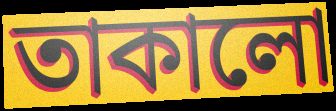
তাকালো